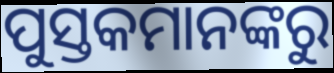
ପୁସ୍ତକମାନଙ୍କରୁ